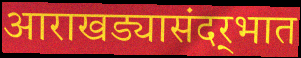
आराखड्यासंदर्भात